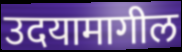
उदयामागील